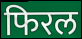
फिरल